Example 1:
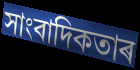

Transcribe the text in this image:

সাংবাদিকতাৰ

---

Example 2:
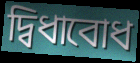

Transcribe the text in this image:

দ্বিধাবোধ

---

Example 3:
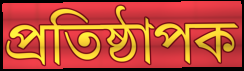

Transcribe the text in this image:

প্ৰতিষ্ঠাপক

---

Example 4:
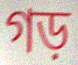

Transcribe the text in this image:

গড়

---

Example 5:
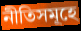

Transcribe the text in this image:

নীতিসমূহে